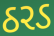
ઠરડ